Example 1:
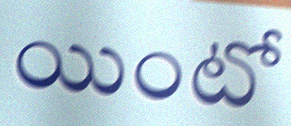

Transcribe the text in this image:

యింటో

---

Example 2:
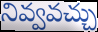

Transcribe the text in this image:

నివ్వవచ్చు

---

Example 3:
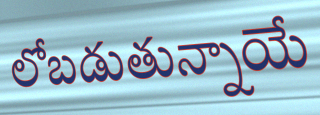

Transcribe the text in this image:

లోబడుతున్నాయే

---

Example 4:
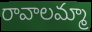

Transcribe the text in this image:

రావాలమ్మా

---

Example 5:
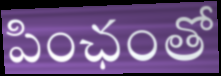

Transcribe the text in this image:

పింఛంతో